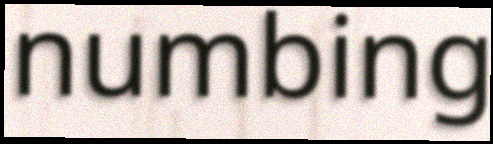
numbing